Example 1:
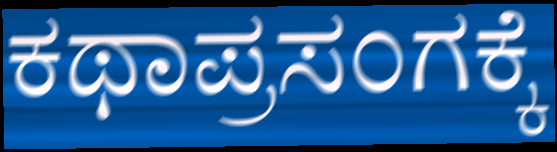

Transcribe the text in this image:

ಕಥಾಪ್ರಸಂಗಕ್ಕೆ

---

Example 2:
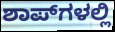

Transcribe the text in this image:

ಶಾಪ್‌ಗಳಲ್ಲಿ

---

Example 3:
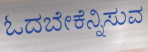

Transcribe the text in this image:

ಓದಬೇಕೆನ್ನಿಸುವ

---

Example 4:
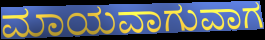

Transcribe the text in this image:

ಮಾಯವಾಗುವಾಗ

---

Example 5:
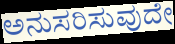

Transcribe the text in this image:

ಅನುಸರಿಸುವುದೇ